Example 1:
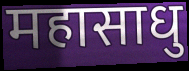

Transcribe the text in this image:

महासाधु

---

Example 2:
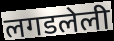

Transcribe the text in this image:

लगडलेली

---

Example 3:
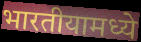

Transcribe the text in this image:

भारतीयामध्ये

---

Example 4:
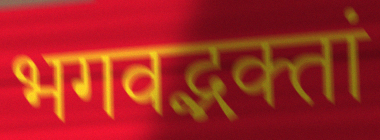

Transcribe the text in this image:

भगवद्भक्तां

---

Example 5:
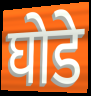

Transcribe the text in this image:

घोडे